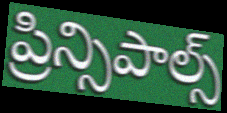
ప్రిన్సిపాల్స్